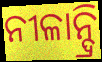
ନୀଳାନ୍ଦ୍ରି